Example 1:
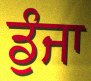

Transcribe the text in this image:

ਡੁੰਜਾ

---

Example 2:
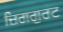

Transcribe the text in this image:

ਜ਼ਿਗਗੁਰਟ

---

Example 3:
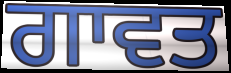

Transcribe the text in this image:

ਗਾਵਤ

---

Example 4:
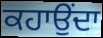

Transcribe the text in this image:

ਕਹਾਉਂਦਾ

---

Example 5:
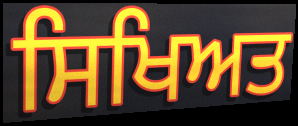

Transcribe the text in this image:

ਸਿਖਿਅਤ